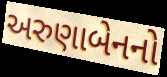
અરુણાબેનનો